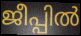
ജീപ്പിൽ